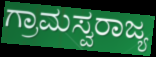
ಗ್ರಾಮಸ್ವರಾಜ್ಯ